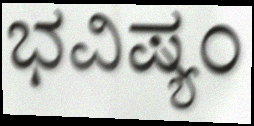
ಭವಿಷ್ಯಂ